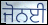
ਜੋਨਈ